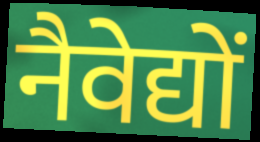
नैवेद्यों